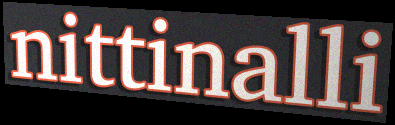
nittinalli